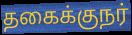
தகைக்குநர்